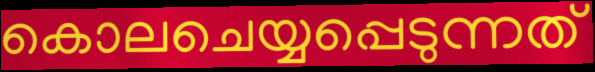
കൊലചെയ്യപ്പെടുന്നത്